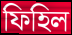
ফিহিল